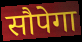
सौपेगा